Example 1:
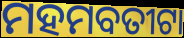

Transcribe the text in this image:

ମହମବତୀଟା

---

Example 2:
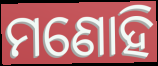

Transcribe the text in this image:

ମଣୋହି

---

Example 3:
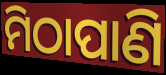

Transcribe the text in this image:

ମିଠାପାଣି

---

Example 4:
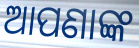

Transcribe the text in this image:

ଆପଣାଙ୍କ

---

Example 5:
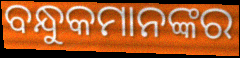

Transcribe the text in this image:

ବନ୍ଧୁକମାନଙ୍କର